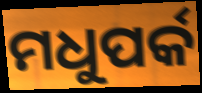
ମଧୁପର୍କ